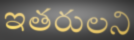
ఇతరులని